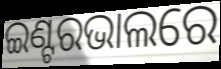
ଇଣ୍ଟରଭାଲରେ